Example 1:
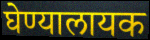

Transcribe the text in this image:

घेण्यालायक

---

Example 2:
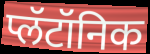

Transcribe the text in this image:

प्लॅटॉनिक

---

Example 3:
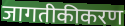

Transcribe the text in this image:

जागतीकीकरण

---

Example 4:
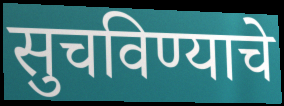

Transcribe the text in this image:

सुचविण्याचे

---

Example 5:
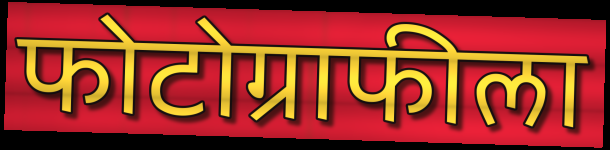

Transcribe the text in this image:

फोटोग्राफीला